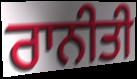
ਰਾਨੀਤੀ